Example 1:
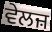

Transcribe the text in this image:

ਵੇਲਜ਼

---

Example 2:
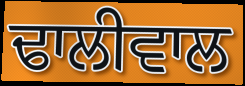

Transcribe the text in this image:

ਢਾਲੀਵਾਲ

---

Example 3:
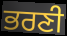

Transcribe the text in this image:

ਭਰਣੀ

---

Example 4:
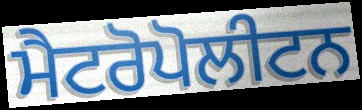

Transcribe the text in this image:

ਮੈਟਰੋਪੋਲੀਟਨ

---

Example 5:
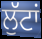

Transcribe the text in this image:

ਲੁੱਟਾਂ